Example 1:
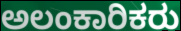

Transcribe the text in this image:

ಅಲಂಕಾರಿಕರು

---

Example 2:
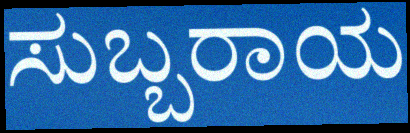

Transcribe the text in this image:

ಸುಬ್ಬರಾಯ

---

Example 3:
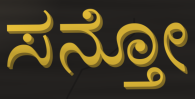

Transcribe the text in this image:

ಸನ್ತೋ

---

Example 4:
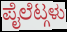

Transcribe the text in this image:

ಪೈಲೆಟ್ಗಳು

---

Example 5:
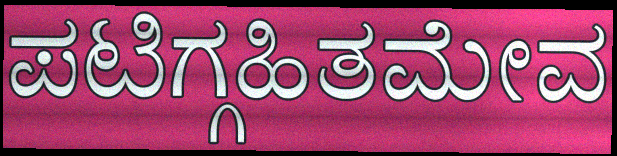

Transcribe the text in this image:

ಪಟಿಗ್ಗಹಿತಮೇವ